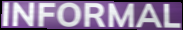
INFORMAL